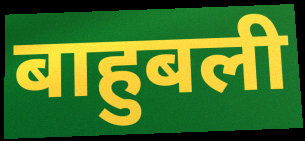
बाहुबली